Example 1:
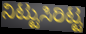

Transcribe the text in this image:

ನಿಟ್ಟುಸಿರಿಟ್ಟ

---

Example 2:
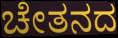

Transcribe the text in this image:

ಚೇತನದ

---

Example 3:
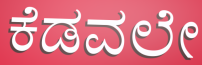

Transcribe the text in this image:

ಕೆಡವಲೇ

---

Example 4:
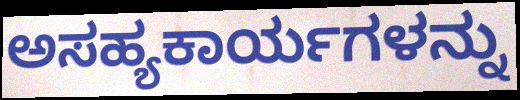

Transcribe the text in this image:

ಅಸಹ್ಯಕಾರ್ಯಗಳನ್ನು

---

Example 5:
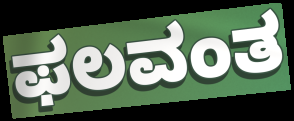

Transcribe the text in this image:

ಫಲವಂತ